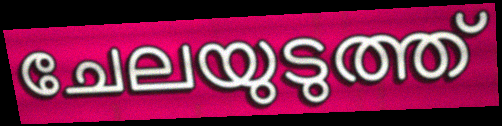
ചേലയുടുത്ത്